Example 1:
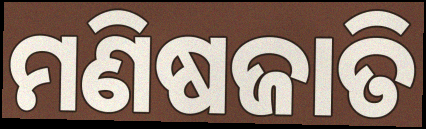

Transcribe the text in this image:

ମଣିଷଜାତି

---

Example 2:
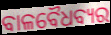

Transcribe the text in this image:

ବାଳବୈଧବ୍ୟର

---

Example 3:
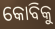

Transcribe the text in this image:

କୋବିକୁ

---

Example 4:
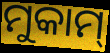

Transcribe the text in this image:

ମୁକାମ୍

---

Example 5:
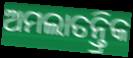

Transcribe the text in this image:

ଅମଲାତନ୍ତ୍ରିକ